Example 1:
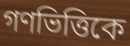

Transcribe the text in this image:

গণভিত্তিকে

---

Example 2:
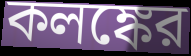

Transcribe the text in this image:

কলঙ্কের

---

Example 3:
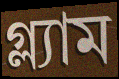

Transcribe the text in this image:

গ্ল্যাম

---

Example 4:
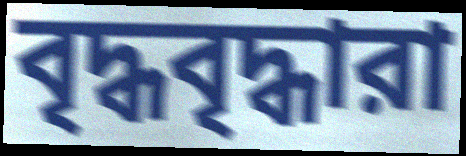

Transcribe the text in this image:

বৃদ্ধবৃদ্ধারা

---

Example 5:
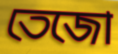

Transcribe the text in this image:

তেজো